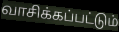
வாசிக்கப்பட்டும்